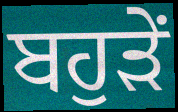
ਬਹੁੜੇਂ